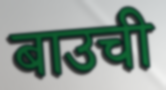
बाउची